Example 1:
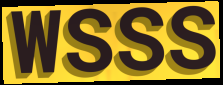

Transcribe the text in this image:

WSSS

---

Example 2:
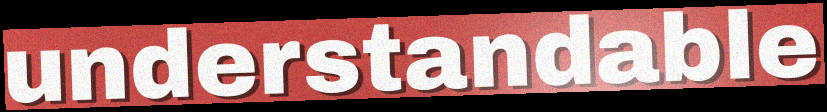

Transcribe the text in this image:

understandable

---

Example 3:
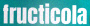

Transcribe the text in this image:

fructicola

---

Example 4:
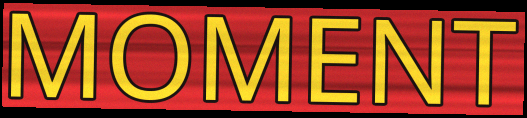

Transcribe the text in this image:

MOMENT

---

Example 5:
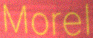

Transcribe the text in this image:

Morel